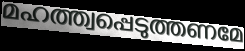
മഹത്ത്വപ്പെടുത്തണമേ